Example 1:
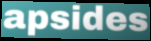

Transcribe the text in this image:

apsides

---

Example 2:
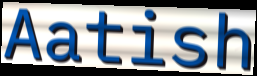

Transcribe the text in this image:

Aatish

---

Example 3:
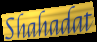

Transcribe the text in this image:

Shahadat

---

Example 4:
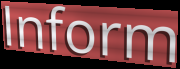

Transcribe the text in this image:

Inform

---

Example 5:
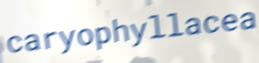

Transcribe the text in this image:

caryophyllacea